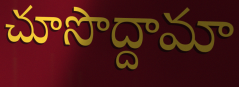
చూసొద్దామా